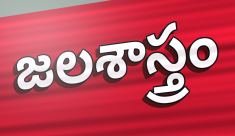
జలశాస్త్రం